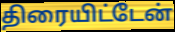
திரையிட்டேன்